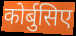
कोर्बुसिए